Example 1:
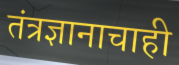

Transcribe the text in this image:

तंत्रज्ञानाचाही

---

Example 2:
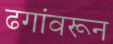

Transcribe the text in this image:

ढगांवरून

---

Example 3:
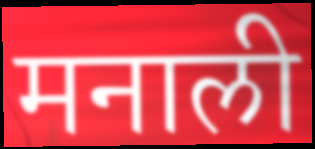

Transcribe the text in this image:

मनाली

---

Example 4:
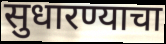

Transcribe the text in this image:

सुधारण्याचा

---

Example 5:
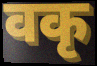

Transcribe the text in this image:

वकृ